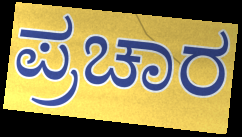
ಪ್ರಚಾರ